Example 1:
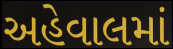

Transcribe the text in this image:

અહેવાલમાં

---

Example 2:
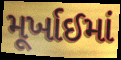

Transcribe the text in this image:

મૂર્ખાઈમાં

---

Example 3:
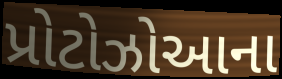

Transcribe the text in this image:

પ્રોટોઝોઆના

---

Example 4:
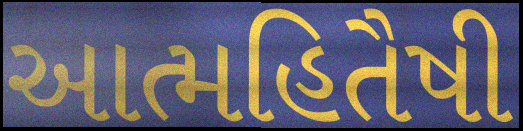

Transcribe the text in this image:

આત્મહિતૈષી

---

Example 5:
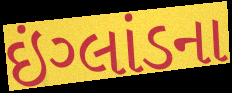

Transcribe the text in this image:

ઇંગ્લાંડના